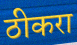
ठीकरा